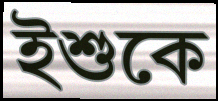
ইশুকে